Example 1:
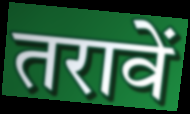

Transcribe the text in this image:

तरावें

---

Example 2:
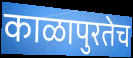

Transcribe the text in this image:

काळापुरतेच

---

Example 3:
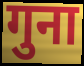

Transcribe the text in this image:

गुना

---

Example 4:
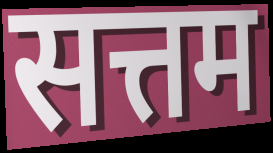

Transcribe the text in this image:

सत्तम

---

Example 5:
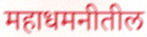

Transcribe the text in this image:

महाधमनीतील